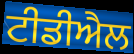
ਟੀਡੀਐਲ